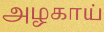
அழகாய்